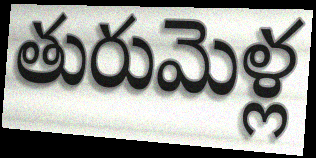
తురుమెళ్ల